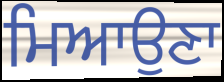
ਮਿਆਉਣਾ